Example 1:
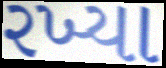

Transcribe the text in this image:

રખ્યા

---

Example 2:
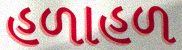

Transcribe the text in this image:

હળાહળ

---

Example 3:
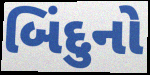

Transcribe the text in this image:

બિંદુનો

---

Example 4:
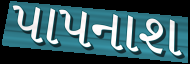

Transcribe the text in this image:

પાપનાશ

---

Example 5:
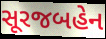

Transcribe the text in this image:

સૂરજબહેન